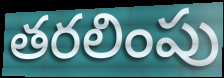
తరలింపు